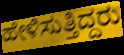
ಹೇಳಿಸುತ್ತಿದ್ದರು